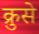
क्रुसे